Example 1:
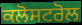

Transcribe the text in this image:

ਕਲੋਸਟਰੋਲ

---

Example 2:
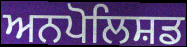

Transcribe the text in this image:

ਅਨਪੋਲਿਸ਼ਡ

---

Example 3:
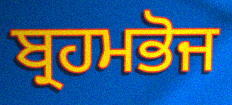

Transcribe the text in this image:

ਬ੍ਰਹਮਭੋਜ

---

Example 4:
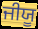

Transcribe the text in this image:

ਜੀਯੂ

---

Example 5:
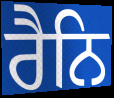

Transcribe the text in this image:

ਰੈਨਿ